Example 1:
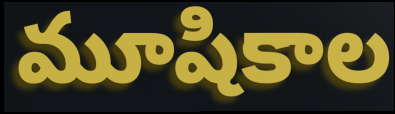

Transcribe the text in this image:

మూషికాల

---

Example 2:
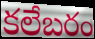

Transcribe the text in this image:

కలేబరం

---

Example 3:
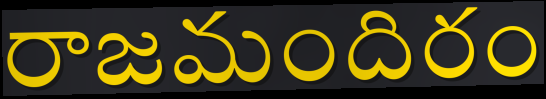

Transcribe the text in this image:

రాజమందిరం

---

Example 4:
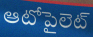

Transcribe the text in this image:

ఆటోపైలెట్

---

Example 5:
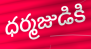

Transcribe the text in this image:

ధర్మజుడికి